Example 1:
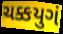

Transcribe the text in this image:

ચક્કયુગં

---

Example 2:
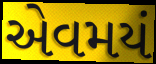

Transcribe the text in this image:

એવમયં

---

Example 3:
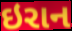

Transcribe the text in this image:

ઇરાન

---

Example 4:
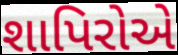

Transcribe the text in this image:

શાપિરોએ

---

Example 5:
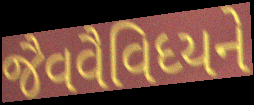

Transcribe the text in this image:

જૈવવૈવિધ્યને